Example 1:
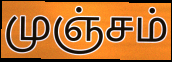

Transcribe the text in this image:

முஞ்சம்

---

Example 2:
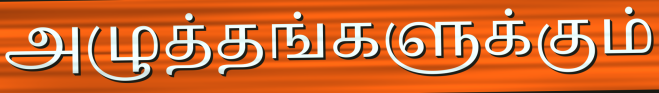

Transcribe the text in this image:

அழுத்தங்களுக்கும்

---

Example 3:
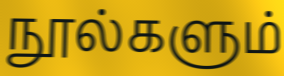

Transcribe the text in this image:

நூல்களும்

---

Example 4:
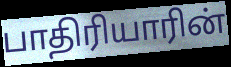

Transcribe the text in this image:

பாதிரியாரின்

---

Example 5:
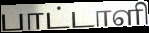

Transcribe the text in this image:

பாட்டாளி